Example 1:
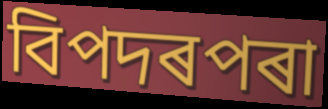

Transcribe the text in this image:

বিপদৰপৰা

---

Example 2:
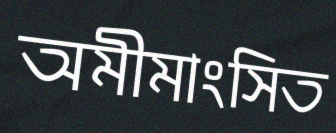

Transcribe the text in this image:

অমীমাংসিত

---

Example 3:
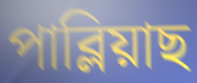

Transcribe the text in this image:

পাব্লিয়াছ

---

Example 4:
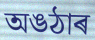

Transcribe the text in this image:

অঙঠাৰ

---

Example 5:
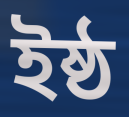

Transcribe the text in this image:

ইষ্ঠ